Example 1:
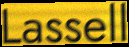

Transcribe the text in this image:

Lassell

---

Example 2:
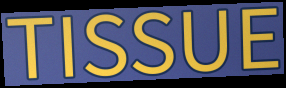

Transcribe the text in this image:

TISSUE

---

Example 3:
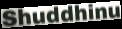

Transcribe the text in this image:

Shuddhinu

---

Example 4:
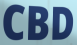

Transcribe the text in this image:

CBD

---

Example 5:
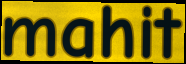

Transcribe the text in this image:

mahit